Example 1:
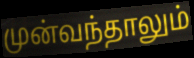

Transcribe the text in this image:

முன்வந்தாலும்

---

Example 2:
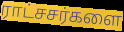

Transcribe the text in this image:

ராட்சசர்களை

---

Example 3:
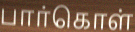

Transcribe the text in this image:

பார்கொள்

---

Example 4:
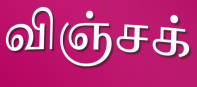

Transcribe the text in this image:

விஞ்சக்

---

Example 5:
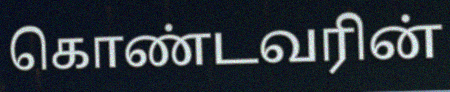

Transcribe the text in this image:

கொண்டவரின்